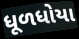
ધૂળધોયા